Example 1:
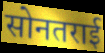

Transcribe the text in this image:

सोनतराई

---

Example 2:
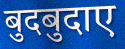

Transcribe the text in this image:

बुदबुदाए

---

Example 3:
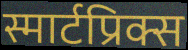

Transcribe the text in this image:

स्मार्टप्रिक्स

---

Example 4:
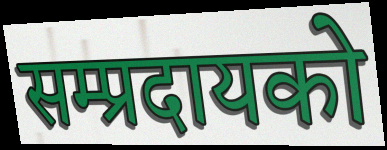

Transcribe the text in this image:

सम्प्रदायको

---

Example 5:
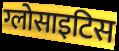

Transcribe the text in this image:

ग्लोसाइटिस